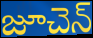
జూచెన్